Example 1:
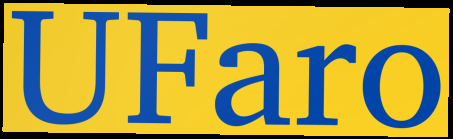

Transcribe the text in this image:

UFaro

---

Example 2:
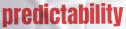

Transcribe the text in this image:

predictability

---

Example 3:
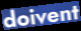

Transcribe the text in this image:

doivent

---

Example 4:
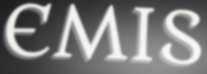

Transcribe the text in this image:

EMIS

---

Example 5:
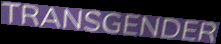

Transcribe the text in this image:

TRANSGENDER